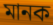
মানক